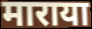
माराया